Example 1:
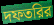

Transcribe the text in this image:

দফতরির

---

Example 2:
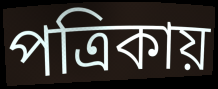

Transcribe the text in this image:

পত্রিকায়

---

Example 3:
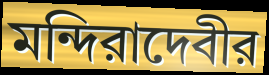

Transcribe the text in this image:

মন্দিরাদেবীর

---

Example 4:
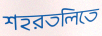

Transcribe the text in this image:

শহরতলিতে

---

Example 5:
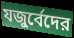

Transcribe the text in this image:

যজুর্বেদের